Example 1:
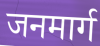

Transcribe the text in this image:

जनमार्ग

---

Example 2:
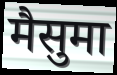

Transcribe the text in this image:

मैसुमा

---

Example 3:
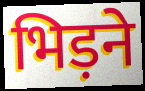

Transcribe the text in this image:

भिड़ने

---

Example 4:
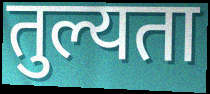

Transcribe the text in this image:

तुल्यता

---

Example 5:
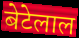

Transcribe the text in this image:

बेटेलाल